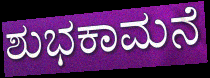
ಶುಭಕಾಮನೆ